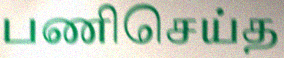
பணிசெய்த